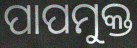
ପାପମୁକ୍ତ